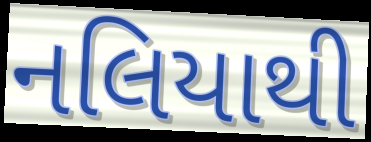
નલિયાથી